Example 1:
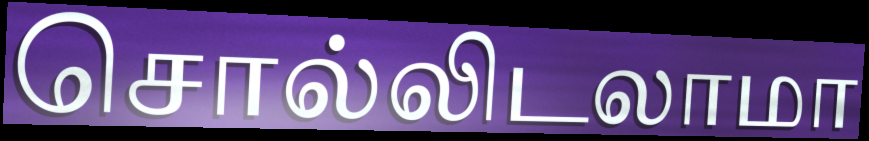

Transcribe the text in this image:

சொல்லிடலாமா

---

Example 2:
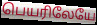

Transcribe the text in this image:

பெயரிலேயே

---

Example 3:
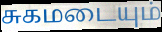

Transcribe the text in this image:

சுகமடையும்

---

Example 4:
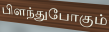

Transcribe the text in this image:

பிளந்துபோகும்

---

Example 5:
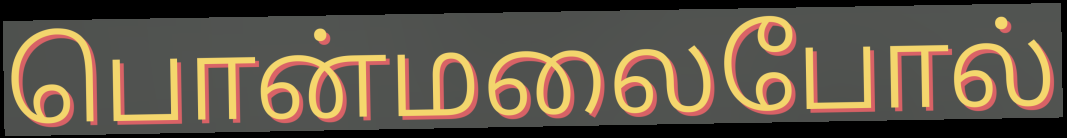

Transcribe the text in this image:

பொன்மலைபோல்